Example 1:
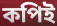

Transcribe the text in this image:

কপিই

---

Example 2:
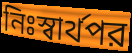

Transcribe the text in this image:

নিঃস্বার্থপর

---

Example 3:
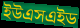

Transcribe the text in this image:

ইউএসএইড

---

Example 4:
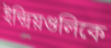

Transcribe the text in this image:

ইন্দ্রিয়গুলিকে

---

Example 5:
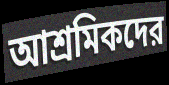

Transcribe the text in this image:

আশ্রমিকদের